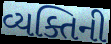
વ્યક્તિની